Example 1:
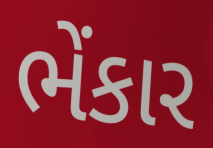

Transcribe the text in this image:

ભેંકાર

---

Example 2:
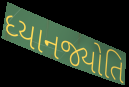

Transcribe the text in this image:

ધ્યાનજ્યોતિ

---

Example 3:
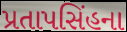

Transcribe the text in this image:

પ્રતાપસિંહના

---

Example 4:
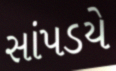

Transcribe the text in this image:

સાંપડયે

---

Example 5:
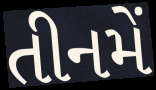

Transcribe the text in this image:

તીનમેં